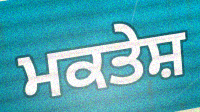
ਮਕਤੇਸ਼